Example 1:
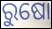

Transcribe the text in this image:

ରୁଷୋ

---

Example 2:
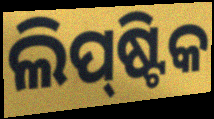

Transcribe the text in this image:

ଲିପ୍‌ଷ୍ଟିକ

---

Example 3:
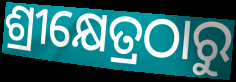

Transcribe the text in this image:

ଶ୍ରୀକ୍ଷେତ୍ରଠାରୁ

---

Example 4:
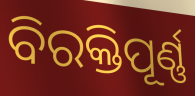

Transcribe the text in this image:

ବିରକ୍ତିପୂର୍ଣ୍ଣ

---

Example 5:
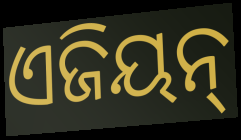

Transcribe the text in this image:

ଏଜିୟନ୍